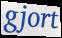
gjort